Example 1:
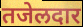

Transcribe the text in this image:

तजेलदार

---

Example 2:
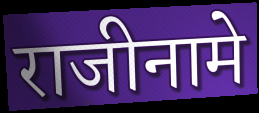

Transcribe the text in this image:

राजीनामे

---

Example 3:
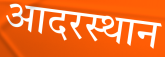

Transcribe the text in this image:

आदरस्थान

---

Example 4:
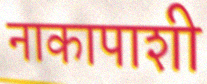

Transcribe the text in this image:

नाकापाशी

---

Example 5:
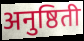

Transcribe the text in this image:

अनुष्ठिती